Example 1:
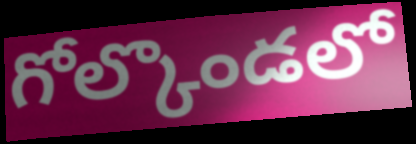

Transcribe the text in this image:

గోల్కొండలో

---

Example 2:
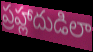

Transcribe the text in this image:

ప్రహ్లాదుడిలా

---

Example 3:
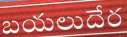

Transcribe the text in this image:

బయలుదేర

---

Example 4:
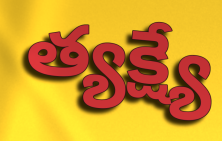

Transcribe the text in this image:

త్యక్ష్యే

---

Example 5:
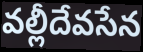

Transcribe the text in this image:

వల్లీదేవసేన